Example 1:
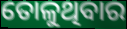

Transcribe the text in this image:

ତୋଳୁଥିବାର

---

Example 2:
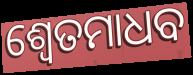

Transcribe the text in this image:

ଶ୍ୱେତମାଧବ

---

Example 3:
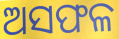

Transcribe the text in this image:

ଅସଫଳ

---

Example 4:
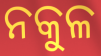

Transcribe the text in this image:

ନକୁଳ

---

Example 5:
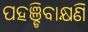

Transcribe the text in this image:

ପହଞ୍ଚିବାକ୍ଷଣି